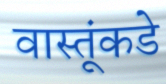
वास्तूंकडे